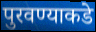
पुरवण्याकडे